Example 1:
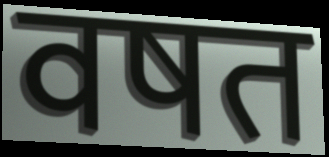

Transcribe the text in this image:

वषत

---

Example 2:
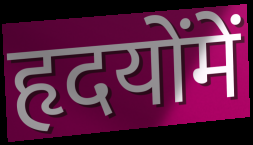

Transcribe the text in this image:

हृदयोंमें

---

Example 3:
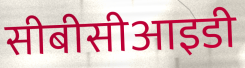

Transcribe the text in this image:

सीबीसीआइडी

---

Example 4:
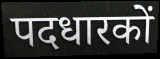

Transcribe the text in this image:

पदधारकों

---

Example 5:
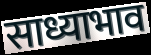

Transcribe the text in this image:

साध्याभाव